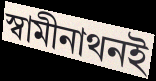
স্বামীনাথনই